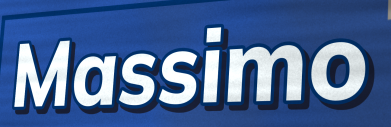
Massimo